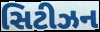
સિટીઝન